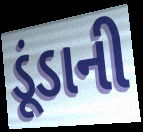
ડૂંડાની